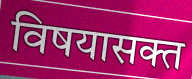
विषयासक्त